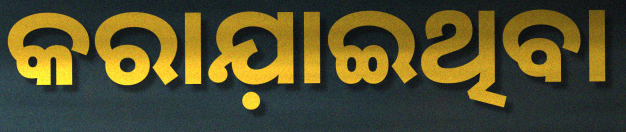
କରାଯ଼ାଇଥିବା